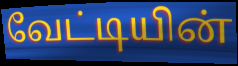
வேட்டியின்